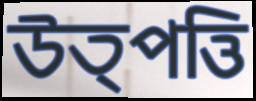
উত্পত্তি